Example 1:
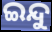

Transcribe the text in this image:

ଇନ୍ଦୁ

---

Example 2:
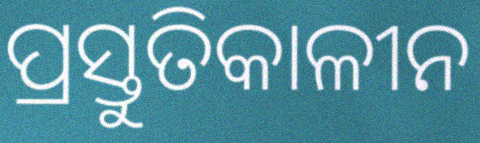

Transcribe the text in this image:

ପ୍ରସ୍ତୁତିକାଳୀନ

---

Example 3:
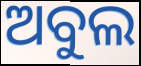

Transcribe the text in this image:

ଅବୁଲ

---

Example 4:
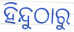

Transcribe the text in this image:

ହିନ୍ଦୁଠାରୁ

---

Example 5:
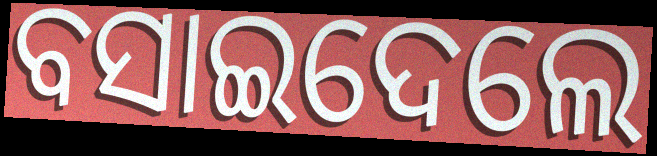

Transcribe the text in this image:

ବସାଇଦେଲେ